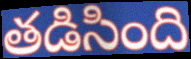
తడిసింది